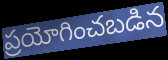
ప్రయోగించబడిన